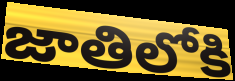
జాతిలోకి